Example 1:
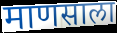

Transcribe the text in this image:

माणसाला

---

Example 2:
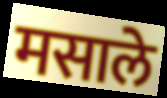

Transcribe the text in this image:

मसाले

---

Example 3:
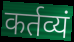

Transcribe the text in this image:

कर्तव्यं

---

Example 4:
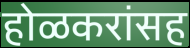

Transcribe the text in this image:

होळकरांसह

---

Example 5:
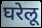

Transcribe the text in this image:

घरेलू